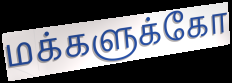
மக்களுக்கோ